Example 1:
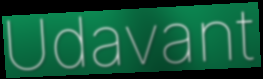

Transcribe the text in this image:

Udavant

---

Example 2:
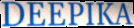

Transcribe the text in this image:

DEEPIKA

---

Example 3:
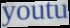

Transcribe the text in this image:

youtu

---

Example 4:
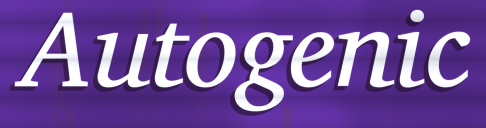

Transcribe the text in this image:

Autogenic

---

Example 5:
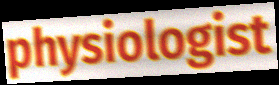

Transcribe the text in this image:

physiologist